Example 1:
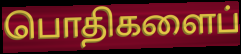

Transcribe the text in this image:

பொதிகளைப்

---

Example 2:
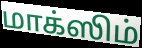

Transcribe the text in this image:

மாக்ஸிம்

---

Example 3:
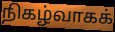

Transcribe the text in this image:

நிகழ்வாகக்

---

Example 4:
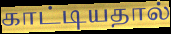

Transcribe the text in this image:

காட்டியதால்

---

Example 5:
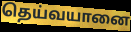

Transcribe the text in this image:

தெய்வயானை